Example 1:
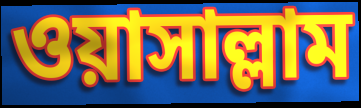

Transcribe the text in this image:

ওয়াসাল্লাম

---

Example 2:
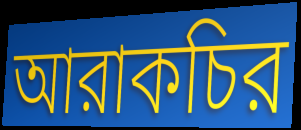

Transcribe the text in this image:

আরাকচির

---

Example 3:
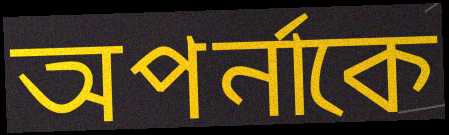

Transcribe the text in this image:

অপর্নাকে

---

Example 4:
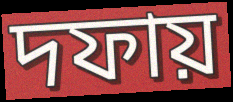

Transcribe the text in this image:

দফায়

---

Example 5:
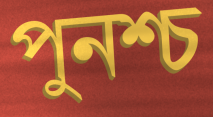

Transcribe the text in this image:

পুনশ্চ